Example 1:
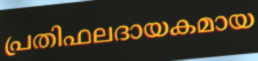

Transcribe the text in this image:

പ്രതിഫലദായകമായ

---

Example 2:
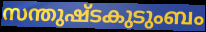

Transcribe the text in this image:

സന്തുഷ്ടകുടുംബം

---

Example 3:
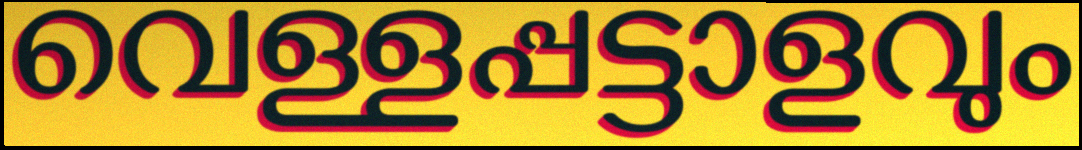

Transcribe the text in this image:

വെള്ളപ്പട്ടാളവും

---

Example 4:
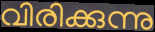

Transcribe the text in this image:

വിരിക്കുന്നു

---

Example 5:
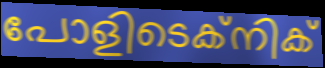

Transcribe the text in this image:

പോളിടെക്നിക്